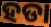
ହଡା